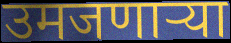
उमजणाऱ्या